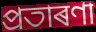
প্ৰতাৰণা